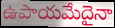
ఉపాయమేదైనా